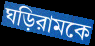
ঘড়িরামকে